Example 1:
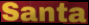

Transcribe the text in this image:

Santa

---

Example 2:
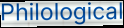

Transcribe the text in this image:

Philological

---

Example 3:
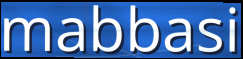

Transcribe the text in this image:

mabbasi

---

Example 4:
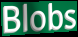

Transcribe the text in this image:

Blobs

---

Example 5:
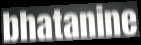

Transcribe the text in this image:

bhatanine